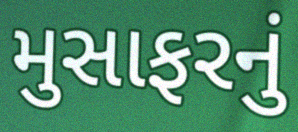
મુસાફરનું